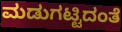
ಮಡುಗಟ್ಟಿದಂತೆ